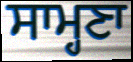
ਸਾਮ੍ਹਣਾ